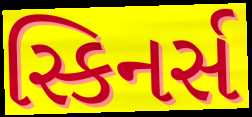
સ્કિનર્સ